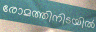
രോമത്തിനിടയിൽ